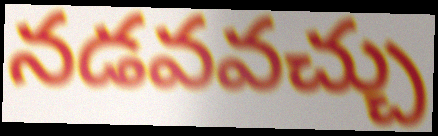
నడవవచ్చు